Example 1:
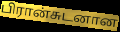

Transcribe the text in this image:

பிரான்சுடனான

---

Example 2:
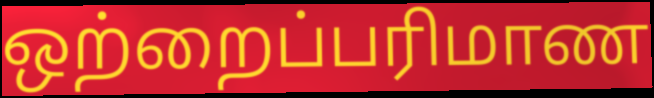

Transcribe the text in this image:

ஒற்றைப்பரிமாண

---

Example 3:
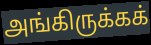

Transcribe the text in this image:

அங்கிருக்கக்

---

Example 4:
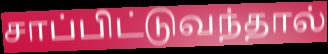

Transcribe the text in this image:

சாப்பிட்டுவந்தால்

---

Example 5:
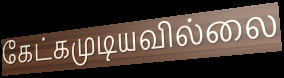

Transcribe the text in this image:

கேட்கமுடியவில்லை